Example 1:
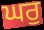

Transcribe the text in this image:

ਘਰੁ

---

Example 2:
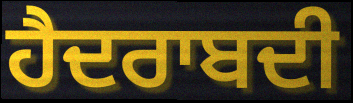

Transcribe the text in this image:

ਹੈਦਰਾਬਦੀ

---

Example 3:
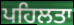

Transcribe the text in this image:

ਪਹਿਲਤਾ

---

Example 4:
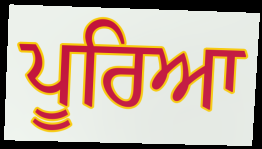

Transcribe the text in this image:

ਪੂਰਿਆ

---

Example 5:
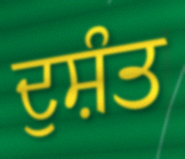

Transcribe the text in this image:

ਦੁਸ਼ੰਤ